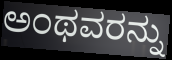
ಅಂಥವರನ್ನು